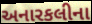
અનારકલીના